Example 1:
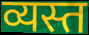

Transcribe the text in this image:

व्‍यस्‍त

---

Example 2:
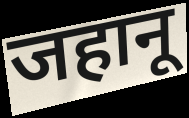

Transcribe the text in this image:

जहानू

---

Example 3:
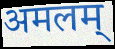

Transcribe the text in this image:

अमलम्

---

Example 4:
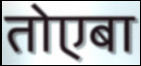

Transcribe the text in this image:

तोएबा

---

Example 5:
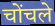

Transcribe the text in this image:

चोंचले